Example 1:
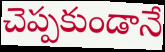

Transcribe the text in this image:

చెప్పకుండానే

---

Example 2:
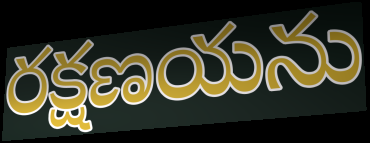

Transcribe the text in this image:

రక్షణయను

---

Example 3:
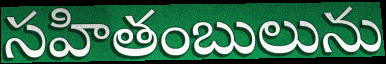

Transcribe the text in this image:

సహితంబులును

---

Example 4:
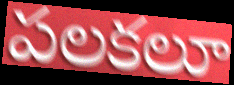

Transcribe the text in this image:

పలకలూ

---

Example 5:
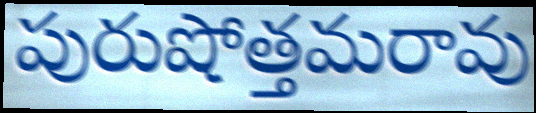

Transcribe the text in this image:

పురుషోత్తమరావు